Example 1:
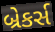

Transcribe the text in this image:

બ્રેકર્સ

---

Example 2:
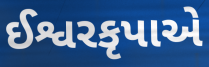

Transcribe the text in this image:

ઈશ્વરકૃપાએ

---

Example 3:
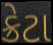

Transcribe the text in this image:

ક્રેટા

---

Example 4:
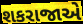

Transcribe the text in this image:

શકરાજાએ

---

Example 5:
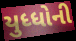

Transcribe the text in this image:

યુધ્ધોની